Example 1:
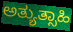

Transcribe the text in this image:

ಅತ್ಯುತ್ಸಾಹಿ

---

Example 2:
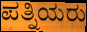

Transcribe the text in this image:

ಪತ್ನಿಯರು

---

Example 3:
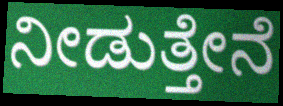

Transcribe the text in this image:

ನೀಡುತ್ತೇನೆ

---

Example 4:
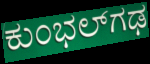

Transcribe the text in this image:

ಕುಂಭಲ್‌ಗಢ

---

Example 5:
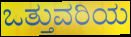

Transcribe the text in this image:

ಒತ್ತುವರಿಯ